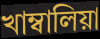
খাম্বালিয়া